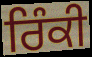
ਰਿੰਕੀ